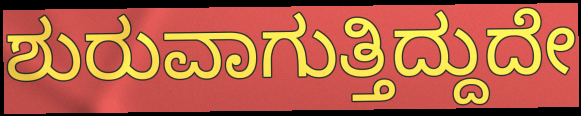
ಶುರುವಾಗುತ್ತಿದ್ದುದೇ